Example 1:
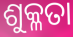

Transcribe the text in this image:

ଶୁକ୍ଳତା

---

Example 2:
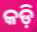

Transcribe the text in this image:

କଡ଼ି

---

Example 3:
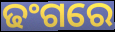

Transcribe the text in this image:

ଢଂଗରେ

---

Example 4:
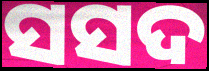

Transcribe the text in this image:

ସସଦ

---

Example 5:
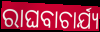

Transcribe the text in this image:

ରାଘବାଚାର୍ଯ୍ୟ